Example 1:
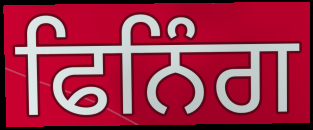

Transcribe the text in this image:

ਫਿਨਿੰਗ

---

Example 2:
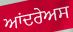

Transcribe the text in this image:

ਆਂਦਰੇਅਸ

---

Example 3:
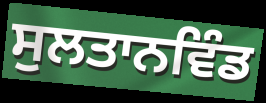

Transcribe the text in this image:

ਸੁਲਤਾਨਵਿੰਡ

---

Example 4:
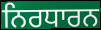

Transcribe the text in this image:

ਨਿਰਧਾਰਨ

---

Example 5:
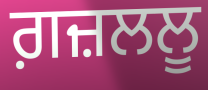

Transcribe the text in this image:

ਗ਼ਜ਼ਲਲੂ